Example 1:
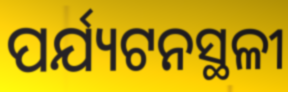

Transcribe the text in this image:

ପର୍ଯ୍ୟଟନସ୍ଥଳୀ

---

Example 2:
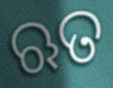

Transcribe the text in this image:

ଋତ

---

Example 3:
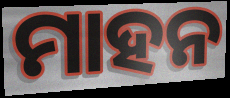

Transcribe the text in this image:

ମାହନ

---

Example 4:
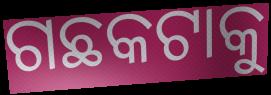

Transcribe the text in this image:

ଗଛକଟାକୁ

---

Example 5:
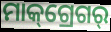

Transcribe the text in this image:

ମାକ୍‌ଗ୍ରେଗର୍